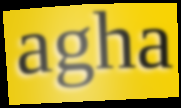
agha